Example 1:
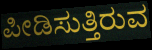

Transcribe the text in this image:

ಪೀಡಿಸುತ್ತಿರುವ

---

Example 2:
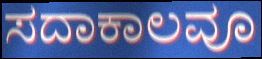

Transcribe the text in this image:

ಸದಾಕಾಲವೂ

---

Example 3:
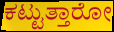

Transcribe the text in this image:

ಕಟ್ಟುತ್ತಾರೋ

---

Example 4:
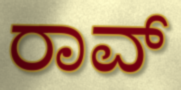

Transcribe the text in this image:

ರಾವ್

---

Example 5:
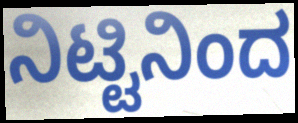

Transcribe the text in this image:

ನಿಟ್ಟಿನಿಂದ